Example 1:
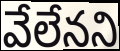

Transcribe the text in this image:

వేలేనని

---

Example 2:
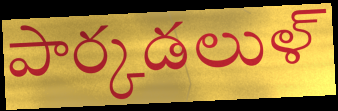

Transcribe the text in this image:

పార్కడలుళ్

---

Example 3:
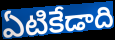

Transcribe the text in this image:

ఏటికేడాది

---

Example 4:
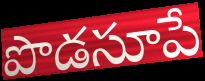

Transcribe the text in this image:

పొడసూపే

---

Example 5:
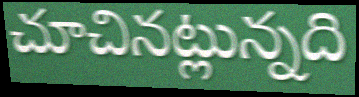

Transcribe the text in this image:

చూచినట్లున్నది